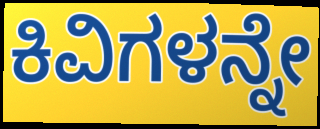
ಕಿವಿಗಳನ್ನೇ